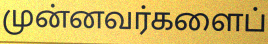
முன்னவர்களைப்